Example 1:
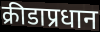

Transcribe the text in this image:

क्रीडाप्रधान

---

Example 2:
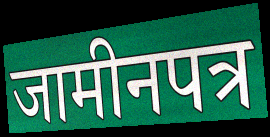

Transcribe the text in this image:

जामीनपत्र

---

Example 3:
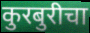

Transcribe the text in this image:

कुरबुरीचा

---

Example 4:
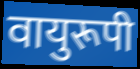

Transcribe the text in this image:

वायुरूपी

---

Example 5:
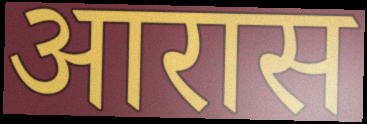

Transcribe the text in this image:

आरास